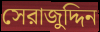
সেরাজুদ্দিন